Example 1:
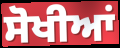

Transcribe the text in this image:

ਸੋਖੀਆਂ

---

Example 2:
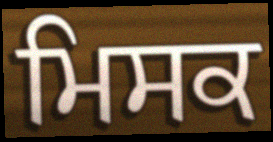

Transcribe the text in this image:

ਮਿਸਕ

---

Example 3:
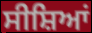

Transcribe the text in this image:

ਸੀਸ਼ਿਆਂ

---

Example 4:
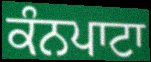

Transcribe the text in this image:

ਕੰਨਪਾਟਾ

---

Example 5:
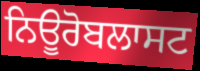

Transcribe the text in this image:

ਨਿਊਰੋਬਲਾਸਟ